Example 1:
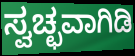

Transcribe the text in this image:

ಸ್ವಚ್ಛವಾಗಿಡಿ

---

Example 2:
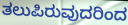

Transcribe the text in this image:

ತಲುಪಿರುವುದರಿಂದ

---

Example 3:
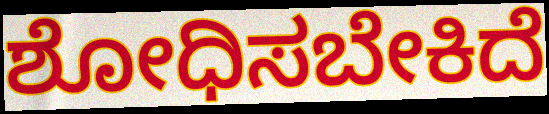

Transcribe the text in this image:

ಶೋಧಿಸಬೇಕಿದೆ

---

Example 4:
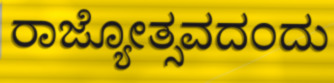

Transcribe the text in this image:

ರಾಜ್ಯೋತ್ಸವದಂದು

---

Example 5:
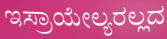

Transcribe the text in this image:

ಇಸ್ರಾಯೇಲ್ಯರಲ್ಲದ